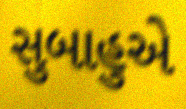
સુબાહુએ